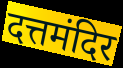
दत्तमंदिर